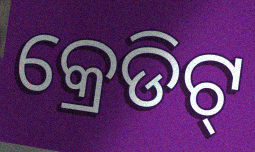
କ୍ରେଡିଟ୍